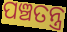
ପଞ୍ଚତନ୍ତ୍ର